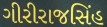
ગીરીરાજસિંહ